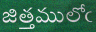
జిత్తములోఁ